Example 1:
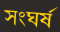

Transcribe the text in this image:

সংঘর্ষ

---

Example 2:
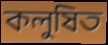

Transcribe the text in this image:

কলুষিত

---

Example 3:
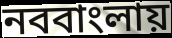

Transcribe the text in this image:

নববাংলায়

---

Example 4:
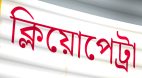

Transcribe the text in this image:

ক্লিয়োপেট্রা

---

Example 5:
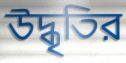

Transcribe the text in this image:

উদ্ধৃতির